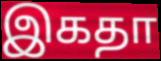
இகதா